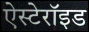
ऐस्टेरॉइड